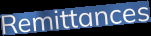
Remittances